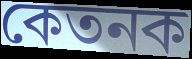
কেতনক